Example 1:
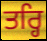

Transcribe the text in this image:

ਤਰ੍ਹਿ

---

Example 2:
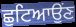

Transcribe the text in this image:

ਛੁਟਿਆਉਂਣ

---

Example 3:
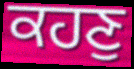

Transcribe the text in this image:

ਕਹਣੁ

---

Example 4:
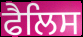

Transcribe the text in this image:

ਫੈਲਿਸ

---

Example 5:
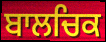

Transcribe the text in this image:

ਬਾਲਚਿਕ